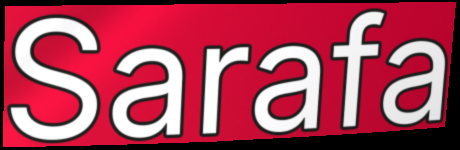
Sarafa